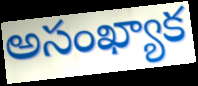
అసంఖ్యాక